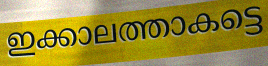
ഇക്കാലത്താകട്ടെ